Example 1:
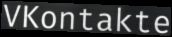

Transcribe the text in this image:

VKontakte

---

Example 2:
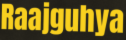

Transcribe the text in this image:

Raajguhya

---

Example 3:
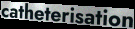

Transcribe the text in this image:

catheterisation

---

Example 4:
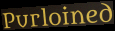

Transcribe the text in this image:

Purloined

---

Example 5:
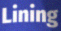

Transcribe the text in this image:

Lining